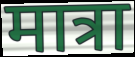
मात्रा